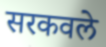
सरकवले